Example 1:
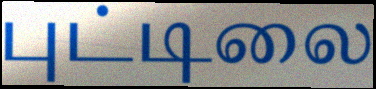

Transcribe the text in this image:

புட்டிலை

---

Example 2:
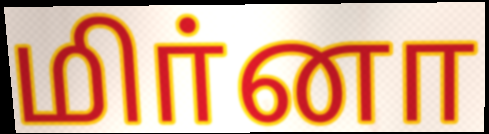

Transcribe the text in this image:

மிர்னா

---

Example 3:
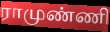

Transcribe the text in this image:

ராமுண்ணி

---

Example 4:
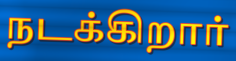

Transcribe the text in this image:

நடக்கிறார்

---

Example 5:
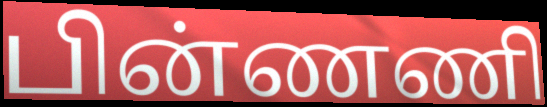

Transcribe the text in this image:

பின்ணணி